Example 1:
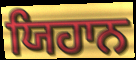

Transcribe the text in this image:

ਯਿਹਾਨ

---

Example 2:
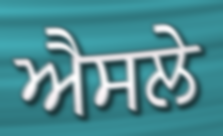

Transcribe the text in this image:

ਐਸਲੇ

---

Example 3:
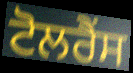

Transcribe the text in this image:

ਟੋਲਰੈਂਸ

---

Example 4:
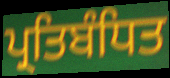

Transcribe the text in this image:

ਪ੍ਰਤਿਬੰਧਿਤ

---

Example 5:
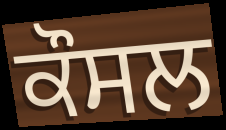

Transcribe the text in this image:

ਕੌਸਲ